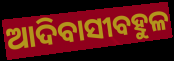
ଆଦିବାସୀବହୁଳ